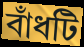
বাঁধটি